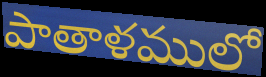
పాతాళములో